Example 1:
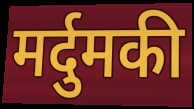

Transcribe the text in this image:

मर्दुमकी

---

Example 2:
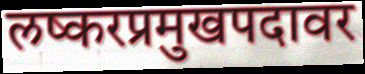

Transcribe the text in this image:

लष्करप्रमुखपदावर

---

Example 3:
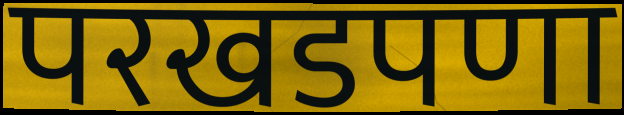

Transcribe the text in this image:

परखडपणा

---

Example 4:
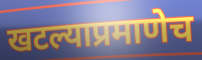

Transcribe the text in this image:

खटल्याप्रमाणेच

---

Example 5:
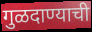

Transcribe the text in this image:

गुळदाण्याची